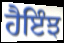
ਹੈਇੰਝ